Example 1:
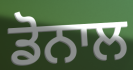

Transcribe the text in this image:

ਡੋਨਾਲ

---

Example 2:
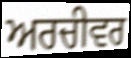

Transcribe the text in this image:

ਅਰਚੀਵਰ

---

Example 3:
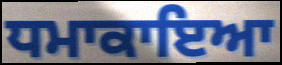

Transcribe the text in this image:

ਧਮਾਕਾਇਆ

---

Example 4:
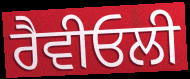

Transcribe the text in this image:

ਰੈਵੀਓਲੀ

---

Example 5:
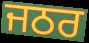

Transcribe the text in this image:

ਜਠਰ